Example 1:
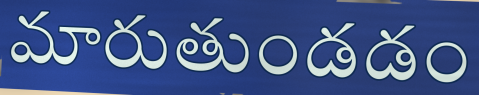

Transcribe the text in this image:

మారుతుండడం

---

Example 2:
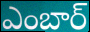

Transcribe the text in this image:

ఎంబార్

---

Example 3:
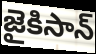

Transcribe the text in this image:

జైకిసాన్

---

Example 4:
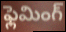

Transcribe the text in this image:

ఫ్లెమింగ్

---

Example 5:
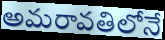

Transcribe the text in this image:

అమరావతిలోనే